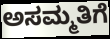
ಅಸಮ್ಮತಿಗೆ